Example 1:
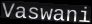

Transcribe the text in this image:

Vaswani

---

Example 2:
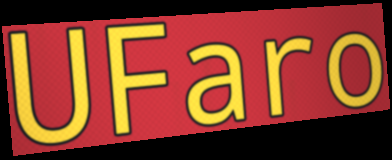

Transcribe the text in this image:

UFaro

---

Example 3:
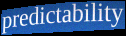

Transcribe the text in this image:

predictability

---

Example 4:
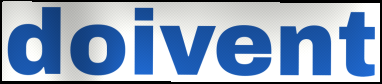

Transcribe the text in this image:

doivent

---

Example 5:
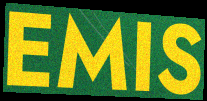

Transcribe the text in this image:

EMIS